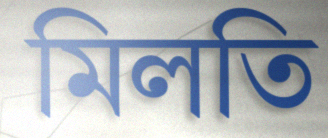
মিলতি